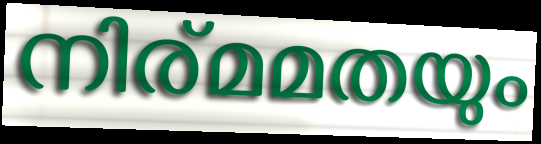
നിര്മമതയും